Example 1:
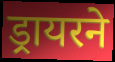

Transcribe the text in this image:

ड्रायरने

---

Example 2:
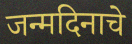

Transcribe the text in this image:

जन्मदिनाचे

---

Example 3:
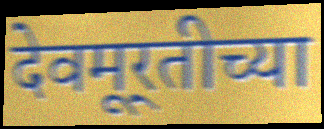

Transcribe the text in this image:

देवमूर्तीच्या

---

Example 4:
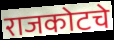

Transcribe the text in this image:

राजकोटचे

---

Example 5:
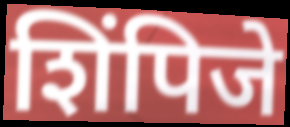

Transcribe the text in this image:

शिंपिजे